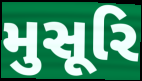
મુસૂરિ